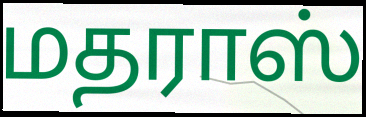
மதராஸ்